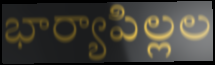
భార్యాపిల్లల